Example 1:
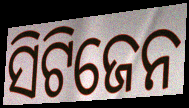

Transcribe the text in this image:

ସିଟିଜେନ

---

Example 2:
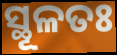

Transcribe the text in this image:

ସ୍ଥୂଳତଃ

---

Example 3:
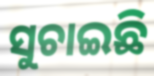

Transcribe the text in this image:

ସୁଚାଇଛି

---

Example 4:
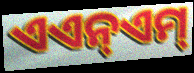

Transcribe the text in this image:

ଏଏନ୍ଏମ୍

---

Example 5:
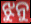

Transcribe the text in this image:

ଝୁନୁ